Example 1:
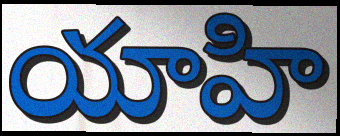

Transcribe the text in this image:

యాహి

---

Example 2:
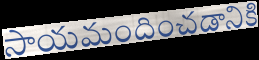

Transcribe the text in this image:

సాయమందించడానికి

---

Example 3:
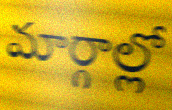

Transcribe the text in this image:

మార్గాల్లో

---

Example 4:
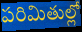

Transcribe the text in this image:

పరిమితుల్లో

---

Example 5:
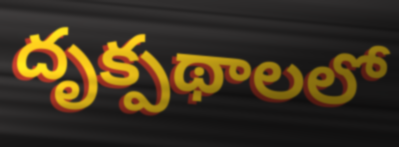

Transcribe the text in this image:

దృక్పథాలలో